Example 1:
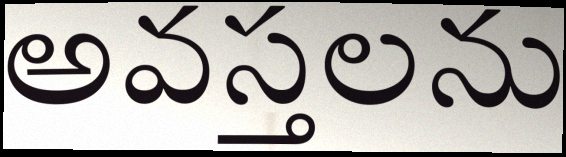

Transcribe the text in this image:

అవస్తలను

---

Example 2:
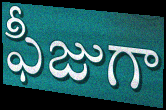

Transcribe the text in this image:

ఫీజుగా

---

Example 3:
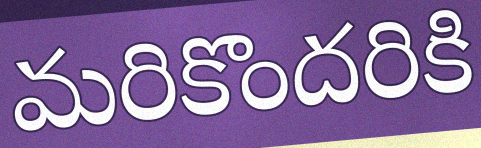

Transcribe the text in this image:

మరికొందరికి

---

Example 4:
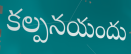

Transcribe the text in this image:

కల్పనయందు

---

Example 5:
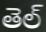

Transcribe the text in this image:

తెల్